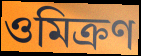
ওমিক্রণ